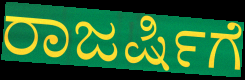
ರಾಜರ್ಷಿಗೆ